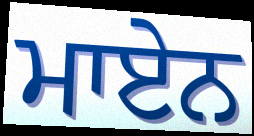
ਮਾਏਨ